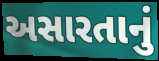
અસારતાનું